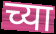
च्या